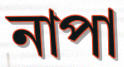
নাপা